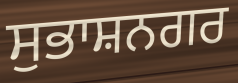
ਸੁਭਾਸ਼ਨਗਰ